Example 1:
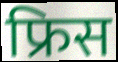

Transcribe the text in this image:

फ्रिस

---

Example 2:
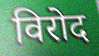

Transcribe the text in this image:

विरोद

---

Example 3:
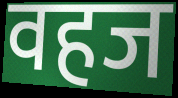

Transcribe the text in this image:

वहज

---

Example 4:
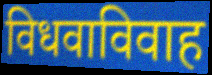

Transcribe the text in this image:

विधवाविवाह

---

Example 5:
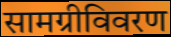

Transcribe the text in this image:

सामग्रीविवरण